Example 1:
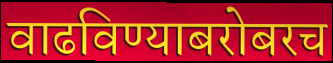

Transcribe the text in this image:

वाढविण्याबरोबरच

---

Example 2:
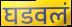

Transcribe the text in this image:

घडवलं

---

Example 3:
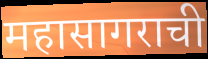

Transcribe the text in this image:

महासागराची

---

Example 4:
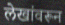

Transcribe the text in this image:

लेखांवरून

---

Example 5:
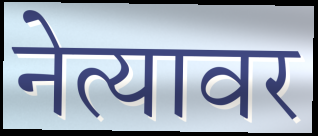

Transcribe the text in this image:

नेत्यावर